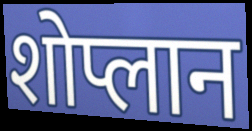
शोप्लान